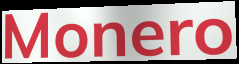
Monero